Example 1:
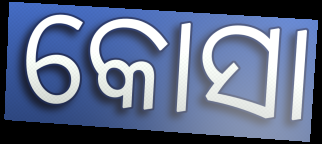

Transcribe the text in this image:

କୋସା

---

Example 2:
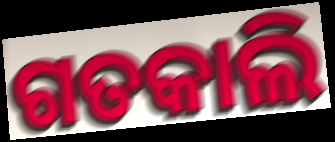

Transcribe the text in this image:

ଗତକାଲି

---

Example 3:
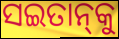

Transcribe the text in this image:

ସଇତାନ୍‌କୁ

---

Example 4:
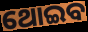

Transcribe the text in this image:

ଥୋଇବ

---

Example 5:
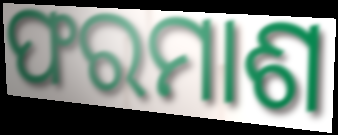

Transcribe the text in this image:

ଫରମାଶ